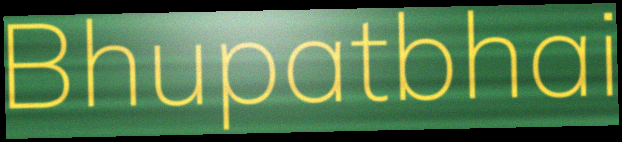
Bhupatbhai